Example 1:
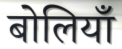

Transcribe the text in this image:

बोलियाँ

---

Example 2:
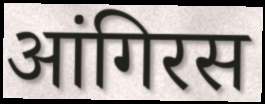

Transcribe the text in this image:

आंगिरस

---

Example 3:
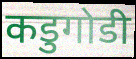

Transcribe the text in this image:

कडुगोडी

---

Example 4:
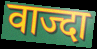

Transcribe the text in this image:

वाज्दा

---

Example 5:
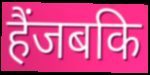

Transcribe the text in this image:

हैंजबकि